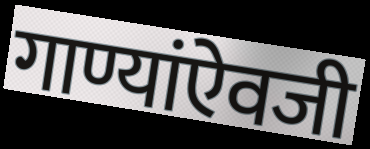
गाण्यांऐवजी